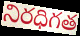
నిరధిగత